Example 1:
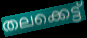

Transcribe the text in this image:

തലക്കെട്ട്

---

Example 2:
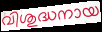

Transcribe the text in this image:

വിശുദ്ധനായ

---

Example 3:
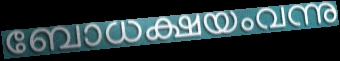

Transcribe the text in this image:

ബോധക്ഷയംവന്നു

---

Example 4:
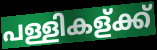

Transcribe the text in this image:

പള്ളികള്ക്ക്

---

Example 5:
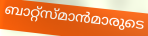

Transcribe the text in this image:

ബാറ്റ്സ്മാൻമാരുടെ